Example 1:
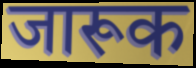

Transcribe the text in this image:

जारूक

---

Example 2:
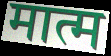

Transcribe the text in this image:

मात्म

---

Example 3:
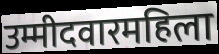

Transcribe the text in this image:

उम्मीदवारमहिला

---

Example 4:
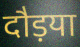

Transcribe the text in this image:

दौड़या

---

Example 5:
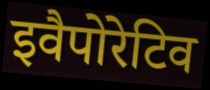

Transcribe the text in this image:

इवैपोरेटिव